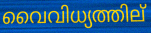
വൈവിധ്യത്തില്